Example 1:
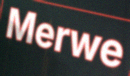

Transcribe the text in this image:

Merwe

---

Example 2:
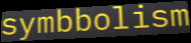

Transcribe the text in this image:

symbbolism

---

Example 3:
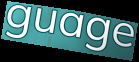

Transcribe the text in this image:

guage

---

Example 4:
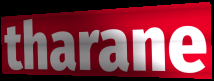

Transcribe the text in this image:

tharane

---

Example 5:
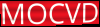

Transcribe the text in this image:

MOCVD